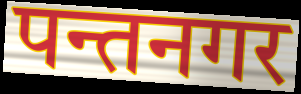
पन्तनगर